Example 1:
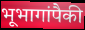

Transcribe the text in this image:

भूभागांपैकी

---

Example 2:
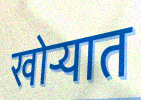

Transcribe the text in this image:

खोऱ्यात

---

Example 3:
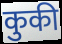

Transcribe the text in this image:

कुकी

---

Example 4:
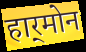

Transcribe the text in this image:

हार्मोन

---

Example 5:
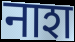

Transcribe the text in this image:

नाश